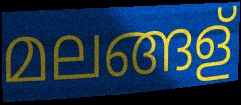
മലങ്ങള്